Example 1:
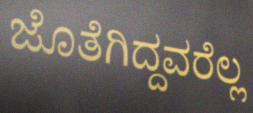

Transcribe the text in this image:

ಜೊತೆಗಿದ್ದವರೆಲ್ಲ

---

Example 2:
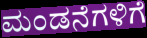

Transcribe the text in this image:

ಮಂಡನೆಗಳಿಗೆ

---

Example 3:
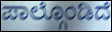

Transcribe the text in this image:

ಪಾಲ್ಗೊಂಡಿದೆ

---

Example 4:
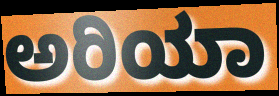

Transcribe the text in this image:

ಅರಿಯಾ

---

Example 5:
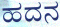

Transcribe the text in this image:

ಹದನ